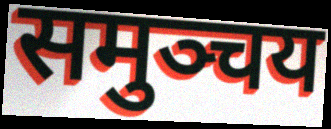
समुञ्चय